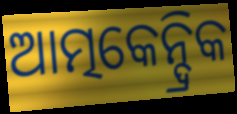
ଆତ୍ମକେନ୍ଦ୍ରିକ